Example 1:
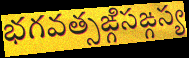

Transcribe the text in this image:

భగవత్సఙ్గిసఙ్గస్య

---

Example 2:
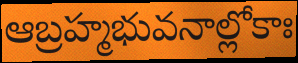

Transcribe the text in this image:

ఆబ్రహ్మభువనాల్లోకాః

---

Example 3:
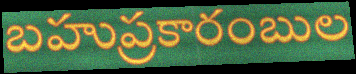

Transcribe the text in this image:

బహుప్రకారంబుల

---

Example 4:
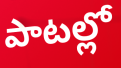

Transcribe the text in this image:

పాటల్లో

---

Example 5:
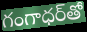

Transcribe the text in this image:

గంగాధర్‌తో